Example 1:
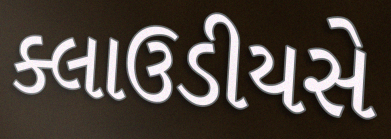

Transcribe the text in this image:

ક્લાઉડીયસે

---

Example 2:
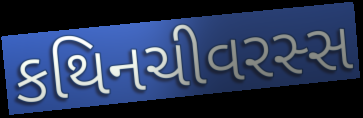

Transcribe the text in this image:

કથિનચીવરસ્સ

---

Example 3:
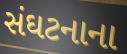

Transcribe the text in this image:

સંઘટનાના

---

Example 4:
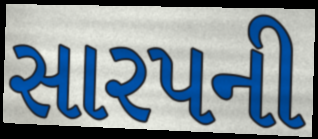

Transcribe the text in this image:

સારપની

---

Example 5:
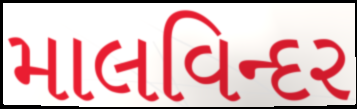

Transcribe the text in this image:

માલવિન્દર